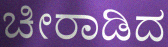
ಚೀರಾಡಿದ